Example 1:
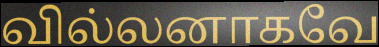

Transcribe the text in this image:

வில்லனாகவே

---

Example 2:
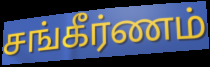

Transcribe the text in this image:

சங்கீர்ணம்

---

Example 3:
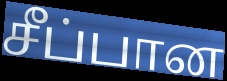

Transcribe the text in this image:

சீப்பான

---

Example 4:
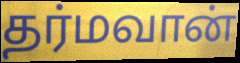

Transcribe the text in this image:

தர்மவான்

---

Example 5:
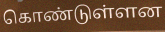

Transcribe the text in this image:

கொண்டுள்ளன